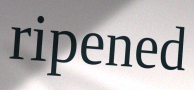
ripened